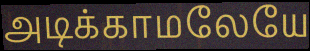
அடிக்காமலேயே